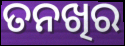
ତନଖିର